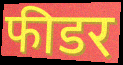
फीडर